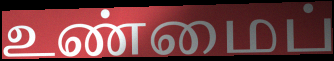
உண்மைப்